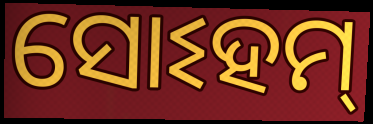
ସୋଽହମ୍